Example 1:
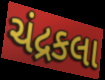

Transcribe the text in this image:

ચંદ્રકલા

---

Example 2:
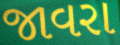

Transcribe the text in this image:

જાવરા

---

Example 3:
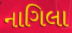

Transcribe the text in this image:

નાગિલા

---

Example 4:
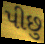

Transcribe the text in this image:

પીછુ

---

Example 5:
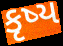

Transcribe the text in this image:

કૃષ્ય